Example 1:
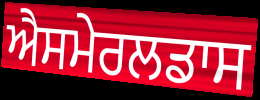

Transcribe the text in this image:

ਐਸਮੇਰਲਡਾਸ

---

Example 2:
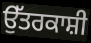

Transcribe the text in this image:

ਉੱਤਰਕਾਸ਼ੀ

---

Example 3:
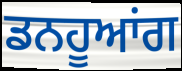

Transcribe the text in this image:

ਡਨਹੂਆਂਗ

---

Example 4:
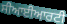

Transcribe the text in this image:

ਸੀਆਈਆਰਟੀ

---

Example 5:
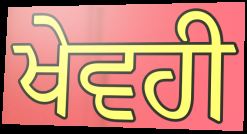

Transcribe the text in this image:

ਖੇਵਹੀ